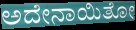
ಅದೇನಾಯಿತೋ